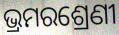
ଭ୍ରମରଶ୍ରେଣୀ